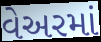
વેઅરમાં